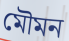
মৌমন